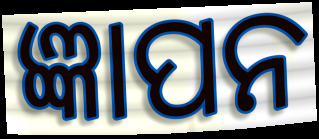
ଜ୍ଞାପନ